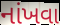
નાંખવા